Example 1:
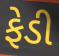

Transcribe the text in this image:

ફેડી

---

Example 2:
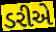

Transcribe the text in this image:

ડરીએ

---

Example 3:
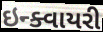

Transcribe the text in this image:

ઇન્ક્વાયરી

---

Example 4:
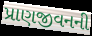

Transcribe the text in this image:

પ્રાણજીવનની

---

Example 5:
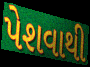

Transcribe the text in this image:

પેશવાથી